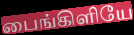
பைங்கிளியே